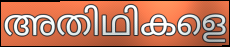
അതിഥികളെ